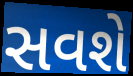
સવશે